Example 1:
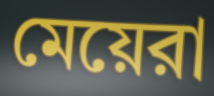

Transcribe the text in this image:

মেয়েরা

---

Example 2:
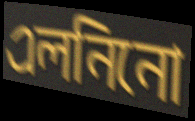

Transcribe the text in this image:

এলনিনো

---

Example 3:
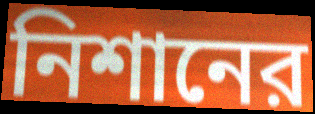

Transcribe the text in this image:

নিশানের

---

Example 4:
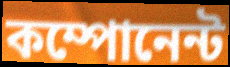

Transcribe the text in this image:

কম্পোনেন্ট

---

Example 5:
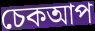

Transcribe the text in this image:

চেকআপ